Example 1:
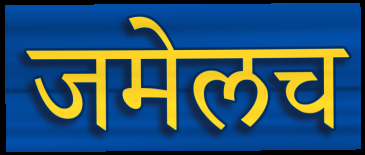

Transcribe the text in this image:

जमेलच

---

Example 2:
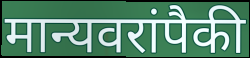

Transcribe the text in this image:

मान्यवरांपैकी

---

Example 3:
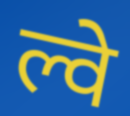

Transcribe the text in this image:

ल्वे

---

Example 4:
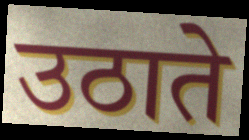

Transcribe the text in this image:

उठाते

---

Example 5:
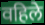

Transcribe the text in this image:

वहिले